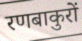
रणबाकुरों